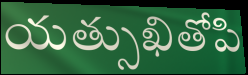
యత్సుఖితోపి